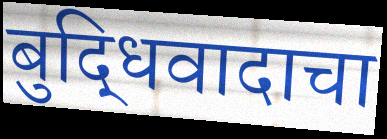
बुद्धिवादाचा